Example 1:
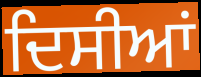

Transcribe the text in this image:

ਦਿਸੀਆਂ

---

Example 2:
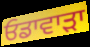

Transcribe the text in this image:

ਓਡਾਵਾੜਾ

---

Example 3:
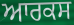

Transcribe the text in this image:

ਆਰਕਸ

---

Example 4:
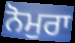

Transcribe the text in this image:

ਨੋਮੁਰਾ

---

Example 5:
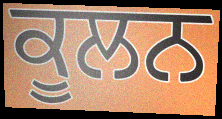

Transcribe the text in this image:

ਕੂਲਨ